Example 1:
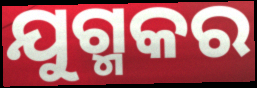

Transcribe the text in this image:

ଯୁଗ୍ମକର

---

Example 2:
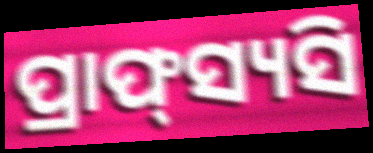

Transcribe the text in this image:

ପ୍ରାଫ୍‌ସ୍ୟସି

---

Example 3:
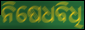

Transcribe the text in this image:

ନିଷେଧବିଧି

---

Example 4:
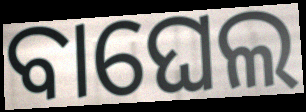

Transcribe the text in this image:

ବାଘେଲ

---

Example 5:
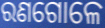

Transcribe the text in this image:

ରଣଗୋଳେ